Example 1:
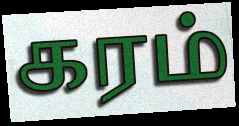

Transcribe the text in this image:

கரம்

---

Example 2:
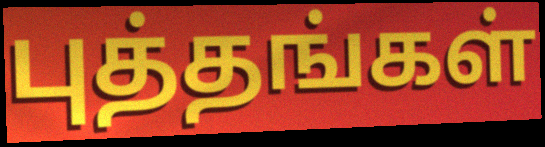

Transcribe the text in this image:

புத்தங்கள்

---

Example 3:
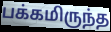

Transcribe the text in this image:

பக்கமிருந்த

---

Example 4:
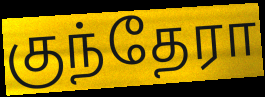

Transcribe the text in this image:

குந்தேரா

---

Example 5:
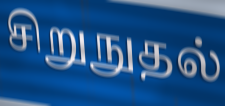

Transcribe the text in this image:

சிறுநுதல்